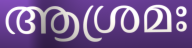
ആശ്രമഃ